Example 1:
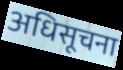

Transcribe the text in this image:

अधिसूचना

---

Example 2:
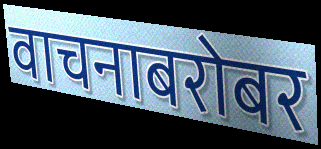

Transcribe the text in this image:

वाचनाबरोबर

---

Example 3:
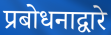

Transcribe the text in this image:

प्रबोधनाद्वारे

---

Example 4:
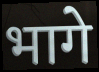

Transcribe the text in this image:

भागे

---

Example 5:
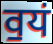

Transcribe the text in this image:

व॒यं